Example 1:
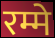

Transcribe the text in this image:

रम्मे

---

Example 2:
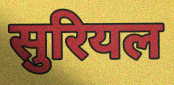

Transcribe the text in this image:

सुरियल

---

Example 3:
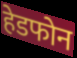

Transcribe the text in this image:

हेडफोन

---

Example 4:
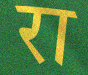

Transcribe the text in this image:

रा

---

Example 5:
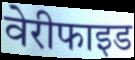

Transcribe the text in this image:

वेरीफाइड